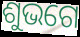
ଶୁଭଗେ